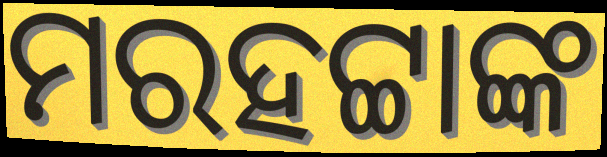
ମରହଟ୍ଟାଙ୍କ